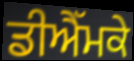
ਡੀਐੱਮਕੇ